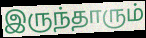
இருந்தாரும்